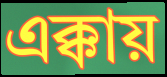
এক্কায়